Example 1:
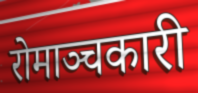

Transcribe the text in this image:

रोमाञ्चकारी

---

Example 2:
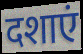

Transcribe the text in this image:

दशाएं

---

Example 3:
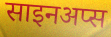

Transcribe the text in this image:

साइनअप्स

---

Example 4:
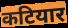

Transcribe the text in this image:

कटियार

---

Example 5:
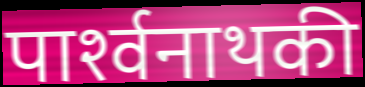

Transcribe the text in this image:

पार्श्वनाथकी